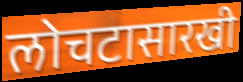
लोचटासारखी